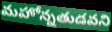
మహోన్నతుడవని